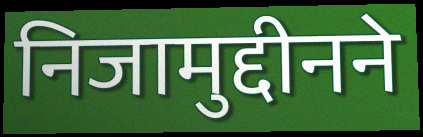
निजामुद्दीनने